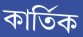
কার্তিক